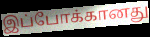
இப்போக்கானது